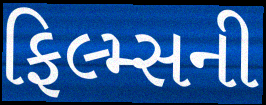
ફિલ્મ્સની